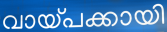
വായ്പക്കായി